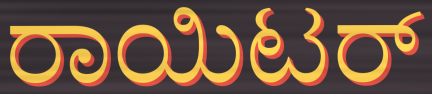
ರಾಯಿಟರ್